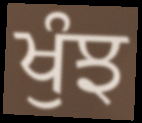
ਖੁੰਝ